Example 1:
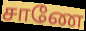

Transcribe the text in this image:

சாணே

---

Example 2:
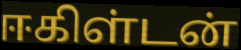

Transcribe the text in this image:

ஈகிள்டன்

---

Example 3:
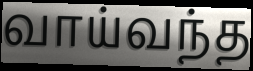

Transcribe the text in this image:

வாய்வந்த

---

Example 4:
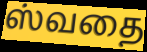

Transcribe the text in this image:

ஸ்வதை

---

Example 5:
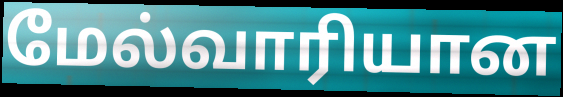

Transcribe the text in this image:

மேல்வாரியான